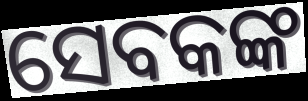
ସେବକଙ୍କ